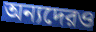
অন্যদেরও